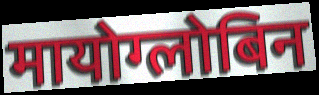
मायोग्लोबिन